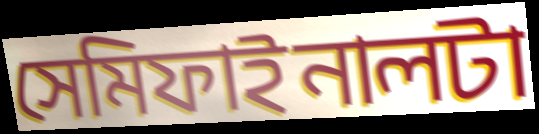
সেমিফাইনালটা